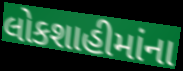
લોકશાહીમાંના